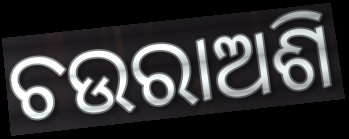
ଚଉରାଅଶି